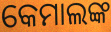
କେମାଲଙ୍କ